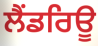
ਲੈਂਡਰਿਊ